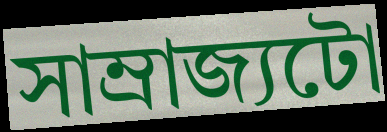
সাম্ৰাজ্যটো